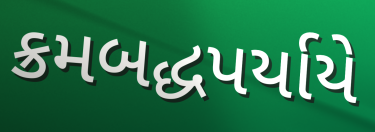
ક્રમબદ્ધપર્યાયે